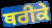
ਥਰੀਕੇ